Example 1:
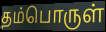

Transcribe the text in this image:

தம்பொருள்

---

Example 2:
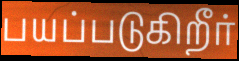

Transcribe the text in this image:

பயப்படுகிறீர்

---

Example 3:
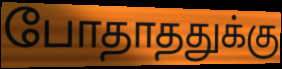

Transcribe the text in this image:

போதாததுக்கு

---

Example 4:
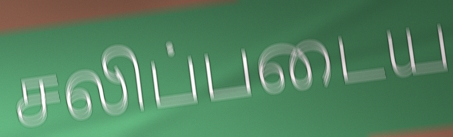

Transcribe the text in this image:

சலிப்படைய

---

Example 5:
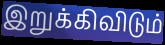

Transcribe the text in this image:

இறுக்கிவிடும்